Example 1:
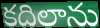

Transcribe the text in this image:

కదిలాను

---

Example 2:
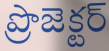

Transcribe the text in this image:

ప్రొజెక్టర్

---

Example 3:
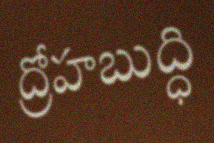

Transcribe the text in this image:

ద్రోహబుద్ధి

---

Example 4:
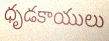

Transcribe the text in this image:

ధృడకాయులు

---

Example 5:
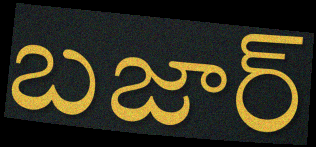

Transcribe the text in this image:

బజార్